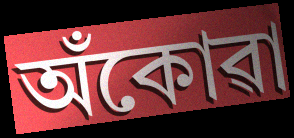
অঁকোৱা